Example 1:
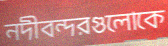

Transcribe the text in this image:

নদীবন্দরগুলোকে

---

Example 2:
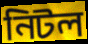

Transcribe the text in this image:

নিটল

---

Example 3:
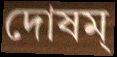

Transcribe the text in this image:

দোষম্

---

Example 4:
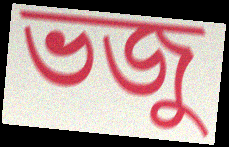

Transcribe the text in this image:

ভজু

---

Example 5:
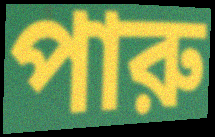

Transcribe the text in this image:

পারু